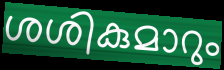
ശശികുമാറും